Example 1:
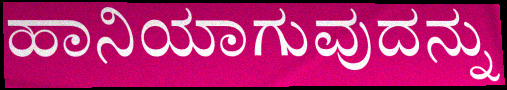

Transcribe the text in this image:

ಹಾನಿಯಾಗುವುದನ್ನು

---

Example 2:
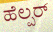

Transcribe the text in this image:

ಹೆಲ್ಪರ್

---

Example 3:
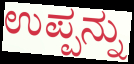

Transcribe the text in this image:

ಉಪ್ಪನ್ನು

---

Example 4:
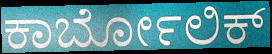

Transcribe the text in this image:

ಕಾರ್ಬೋಲಿಕ್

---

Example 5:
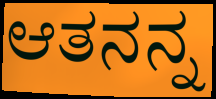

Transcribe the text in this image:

ಆತನನ್ನ